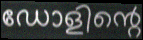
ഡോളിന്റെ